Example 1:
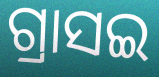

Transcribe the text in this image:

ଗ୍ରାସଇ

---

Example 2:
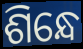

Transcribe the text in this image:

ଶିନ୍ଧେ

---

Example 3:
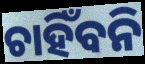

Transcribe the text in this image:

ଚାହିଁବନି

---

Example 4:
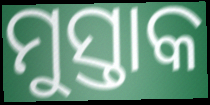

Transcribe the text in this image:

ମୁସ୍ତାକ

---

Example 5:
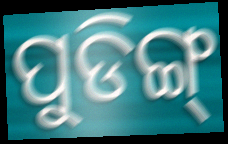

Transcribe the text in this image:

ପୁଡିଙ୍ଗ୍